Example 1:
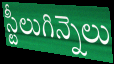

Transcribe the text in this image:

స్టీలుగిన్నెలు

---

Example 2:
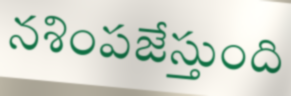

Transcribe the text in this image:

నశింపజేస్తుంది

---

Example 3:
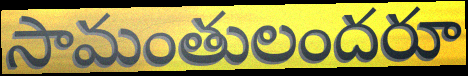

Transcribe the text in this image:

సామంతులందరూ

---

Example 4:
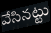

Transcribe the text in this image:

వేసినట్టు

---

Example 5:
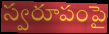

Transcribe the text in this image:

స్వరూపంపై